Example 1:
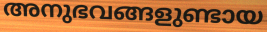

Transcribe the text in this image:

അനുഭവങ്ങളുണ്ടായ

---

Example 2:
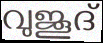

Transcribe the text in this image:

വുജൂദ്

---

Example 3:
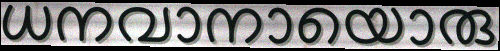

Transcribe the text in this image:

ധനവാനായൊരു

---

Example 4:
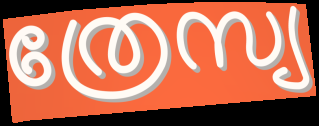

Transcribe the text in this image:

ത്രേസ്യ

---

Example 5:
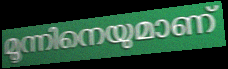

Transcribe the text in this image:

മൂന്നിനെയുമാണ്